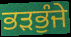
ਭੜਭੁੰਜੇ